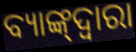
ବ୍ୟାଙ୍କ୍‌ଦ୍ୱାରା